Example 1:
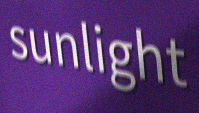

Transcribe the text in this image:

sunlight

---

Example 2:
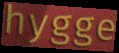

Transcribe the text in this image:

hygge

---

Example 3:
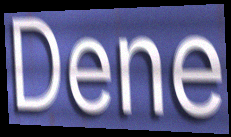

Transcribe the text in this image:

Dene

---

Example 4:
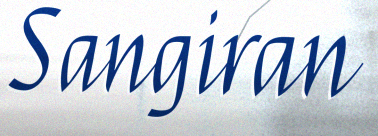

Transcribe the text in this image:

Sangiran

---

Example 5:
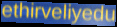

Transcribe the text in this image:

ethirveliyedu